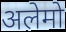
अलेमो